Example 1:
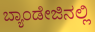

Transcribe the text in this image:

ಬ್ಯಾಂಡೇಜಿನಲ್ಲಿ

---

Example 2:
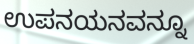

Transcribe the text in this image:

ಉಪನಯನವನ್ನೂ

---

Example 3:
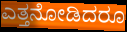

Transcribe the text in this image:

ಎತ್ತನೋಡಿದರೂ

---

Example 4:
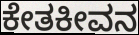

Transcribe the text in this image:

ಕೇತಕೀವನ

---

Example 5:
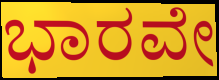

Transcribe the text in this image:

ಭಾರವೇ